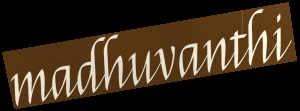
madhuvanthi